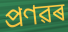
প্ৰণৱৰ